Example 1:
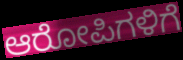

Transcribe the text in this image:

ಆರೋಪಿಗಳಿಗೆ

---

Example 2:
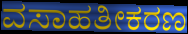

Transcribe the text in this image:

ವಸಾಹತೀಕರಣ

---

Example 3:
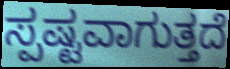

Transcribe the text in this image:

ಸ್ಪಷ್ಟವಾಗುತ್ತದೆ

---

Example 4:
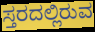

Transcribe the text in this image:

ಸ್ತರದಲ್ಲಿರುವ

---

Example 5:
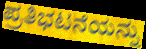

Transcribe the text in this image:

ಪ್ರತಿಭಟನೆಯನ್ನು